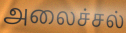
அலைச்சல்